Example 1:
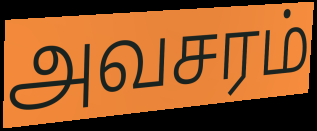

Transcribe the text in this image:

அவசரம்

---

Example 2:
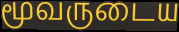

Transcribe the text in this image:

மூவருடைய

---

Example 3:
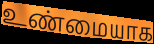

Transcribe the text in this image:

உண்மையாக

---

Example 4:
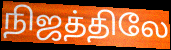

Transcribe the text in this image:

நிஜத்திலே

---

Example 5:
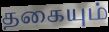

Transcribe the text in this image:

தகையும்